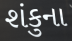
શંકુના